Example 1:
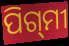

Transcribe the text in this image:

ପିଗ୍‌ମୀ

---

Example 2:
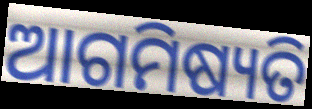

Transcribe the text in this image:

ଆଗମିଷ୍ୟତି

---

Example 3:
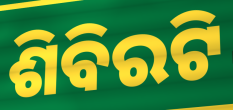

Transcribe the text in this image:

ଶିବିରଟି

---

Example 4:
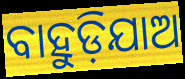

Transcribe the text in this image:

ବାହୁଡ଼ିଯାଅ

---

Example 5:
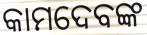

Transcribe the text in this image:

କାମଦେବଙ୍କ